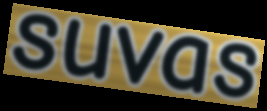
suvas